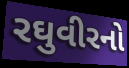
રઘુવીરનો